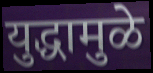
युद्धामुळे